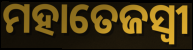
ମହାତେଜସ୍ୱୀ